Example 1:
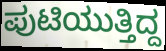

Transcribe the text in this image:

ಪುಟಿಯುತ್ತಿದ್ದ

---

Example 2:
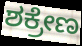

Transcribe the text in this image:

ಶಕ್ರೇಣ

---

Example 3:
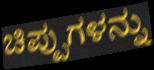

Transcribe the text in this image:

ಚಿಪ್ಪುಗಳನ್ನು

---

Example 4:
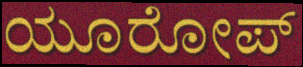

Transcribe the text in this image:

ಯೂರೋಪ್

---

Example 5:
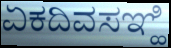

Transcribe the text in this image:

ಏಕದಿವಸಞ್ಹಿ